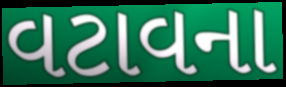
વટાવના